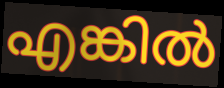
എങ്കിൽ